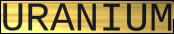
URANIUM